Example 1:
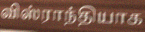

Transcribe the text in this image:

விஸ்ராந்தியாக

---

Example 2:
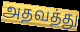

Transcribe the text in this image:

அதவத்து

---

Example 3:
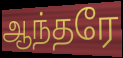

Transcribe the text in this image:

ஆந்தரே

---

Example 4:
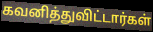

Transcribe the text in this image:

கவனித்துவிட்டார்கள்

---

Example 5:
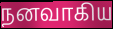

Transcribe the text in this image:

நனவாகிய